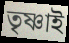
তৃষ্ণাই